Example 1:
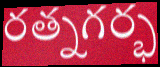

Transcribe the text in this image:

రత్నగర్భ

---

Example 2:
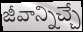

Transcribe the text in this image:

జీవాన్నిచ్చే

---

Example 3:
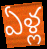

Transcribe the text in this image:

ఏళ్ల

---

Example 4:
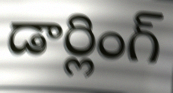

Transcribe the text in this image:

డార్లింగ్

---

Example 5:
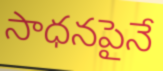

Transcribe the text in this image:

సాధనపైనే